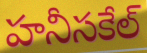
హనీసకేల్